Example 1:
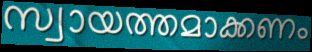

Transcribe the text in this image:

സ്വായത്തമാക്കണം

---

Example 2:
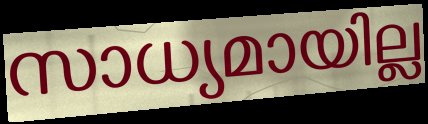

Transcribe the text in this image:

സാധ്യമായില്ല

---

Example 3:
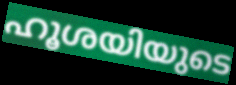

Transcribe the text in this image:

ഹൂശയിയുടെ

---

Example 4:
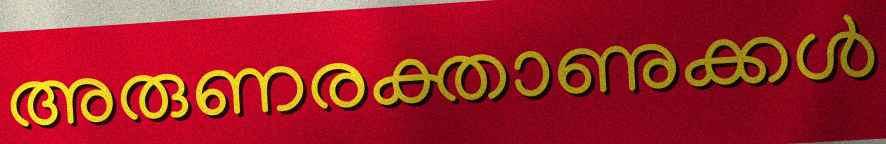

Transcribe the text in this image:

അരുണരക്താണുക്കൾ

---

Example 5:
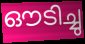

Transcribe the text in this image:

ഔടിച്ചു